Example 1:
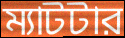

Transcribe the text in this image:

ম্যাটটার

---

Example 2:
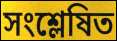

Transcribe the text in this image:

সংশ্লেষিত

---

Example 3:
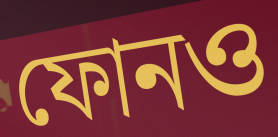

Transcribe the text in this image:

ফোনও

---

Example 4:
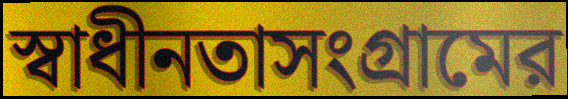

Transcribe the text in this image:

স্বাধীনতাসংগ্রামের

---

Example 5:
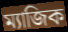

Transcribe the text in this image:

ম্যাজিক